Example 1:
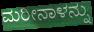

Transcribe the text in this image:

ಮರೀನಾಳನ್ನು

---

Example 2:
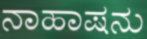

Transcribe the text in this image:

ನಾಹಾಷನು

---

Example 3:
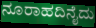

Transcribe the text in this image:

ನೂರಾಹದಿನೈದು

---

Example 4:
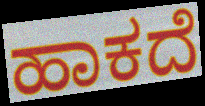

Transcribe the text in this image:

ಹಾಕದೆ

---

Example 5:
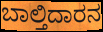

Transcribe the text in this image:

ಬಾಲ್ತಿದಾರನ